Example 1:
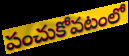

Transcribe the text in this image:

పంచుకోవటంలో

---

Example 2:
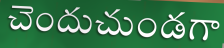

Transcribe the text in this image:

చెందుచుండగా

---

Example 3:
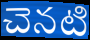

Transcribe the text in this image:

చెనటి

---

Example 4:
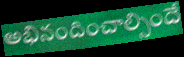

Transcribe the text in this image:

అభినందించాల్సిందే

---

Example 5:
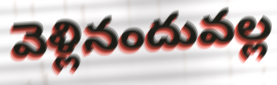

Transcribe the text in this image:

వెళ్లినందువల్ల